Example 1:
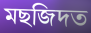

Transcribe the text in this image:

মছজিদত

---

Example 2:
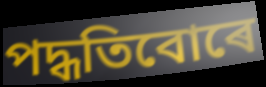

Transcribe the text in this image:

পদ্ধতিবোৰে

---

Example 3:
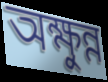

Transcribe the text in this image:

অক্ষুন্ন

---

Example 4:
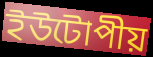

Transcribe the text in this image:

ইউটোপীয়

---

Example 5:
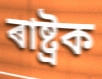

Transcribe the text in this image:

ৰাষ্ট্ৰক